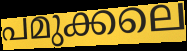
പമുക്കലെ